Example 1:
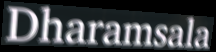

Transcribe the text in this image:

Dharamsala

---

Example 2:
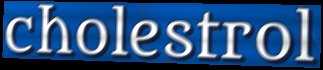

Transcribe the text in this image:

cholestrol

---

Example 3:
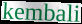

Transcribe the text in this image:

kembali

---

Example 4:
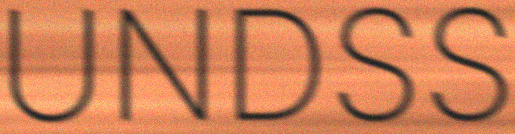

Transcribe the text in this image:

UNDSS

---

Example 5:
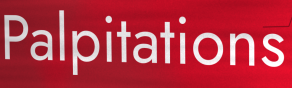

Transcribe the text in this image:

Palpitations